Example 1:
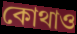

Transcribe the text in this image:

কোথাও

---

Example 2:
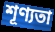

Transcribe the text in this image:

শূণ্যতা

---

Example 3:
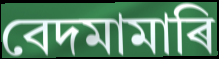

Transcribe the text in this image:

বেদমামাৰি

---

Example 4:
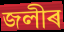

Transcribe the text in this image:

জলীৰ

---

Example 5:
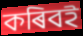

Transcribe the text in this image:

কৰিবই